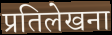
प्रतिलेखना